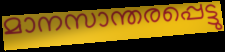
മാനസാന്തരപ്പെട്ടു